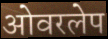
ओवरलेप